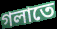
গলাতে